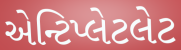
એન્ટિપ્લેટલેટ